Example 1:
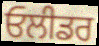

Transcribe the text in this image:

ਓਲੀਡਰ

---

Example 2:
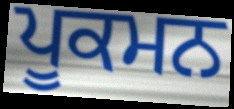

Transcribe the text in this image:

ਪੂਕਮਨ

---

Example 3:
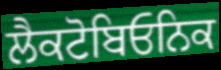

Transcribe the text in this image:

ਲੈਕਟੋਬਿਓਨਿਕ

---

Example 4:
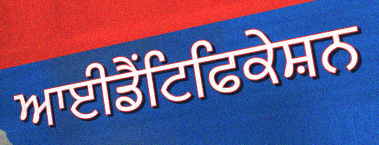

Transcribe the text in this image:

ਆਈਡੈਂਟਿਫਿਕੇਸ਼ਨ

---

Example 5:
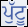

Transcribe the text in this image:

ਪੁੱਟੂ